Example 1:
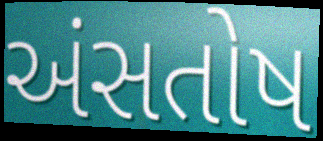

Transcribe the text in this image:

અંસતોષ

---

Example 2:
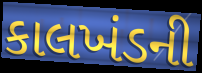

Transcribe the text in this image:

કાલખંડની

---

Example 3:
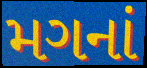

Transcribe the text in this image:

મગનાં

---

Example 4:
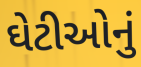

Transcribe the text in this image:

ઘેટીઓનું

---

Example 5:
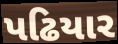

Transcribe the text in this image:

પઢિયાર